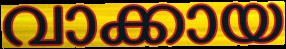
വാക്കായ